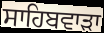
ਸਾਹਿਬਵਾੜਾ